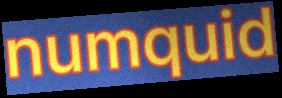
numquid